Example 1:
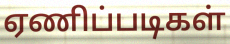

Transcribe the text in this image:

ஏணிப்படிகள்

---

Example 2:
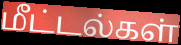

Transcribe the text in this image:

மீட்டல்கள்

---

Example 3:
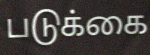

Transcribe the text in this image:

படுக்கை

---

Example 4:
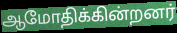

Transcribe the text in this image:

ஆமோதிக்கின்றனர்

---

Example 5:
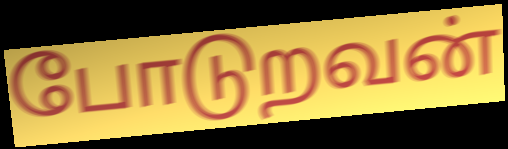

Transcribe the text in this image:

போடுறவன்